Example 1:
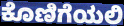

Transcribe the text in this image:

ಕೊಣಿಗೆಯಲಿ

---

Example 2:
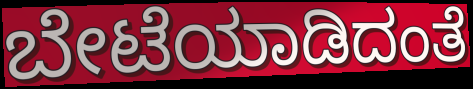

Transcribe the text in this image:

ಬೇಟೆಯಾಡಿದಂತೆ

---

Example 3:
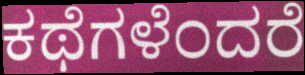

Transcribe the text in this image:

ಕಥೆಗಳೆಂದರೆ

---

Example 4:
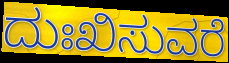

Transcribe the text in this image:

ದುಃಖಿಸುವರೆ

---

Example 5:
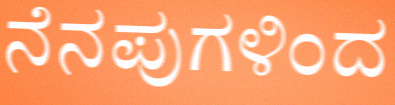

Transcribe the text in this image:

ನೆನಪುಗಳಿಂದ